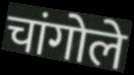
चांगोले